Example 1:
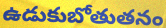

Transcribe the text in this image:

ఉడుకుబోతుతనం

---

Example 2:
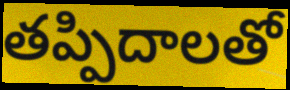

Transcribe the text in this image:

తప్పిదాలతో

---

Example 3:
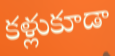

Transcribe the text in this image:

కళ్లుకూడా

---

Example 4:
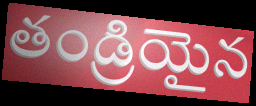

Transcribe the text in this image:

తండ్రియైన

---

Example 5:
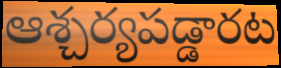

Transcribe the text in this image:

ఆశ్చర్యపడ్డారట